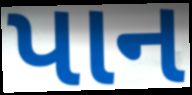
પાન